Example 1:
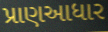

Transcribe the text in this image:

પ્રાણઆધાર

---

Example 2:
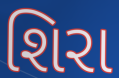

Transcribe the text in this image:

શિરા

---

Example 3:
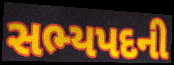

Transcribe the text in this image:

સભ્યપદની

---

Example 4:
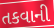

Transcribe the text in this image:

તકવાની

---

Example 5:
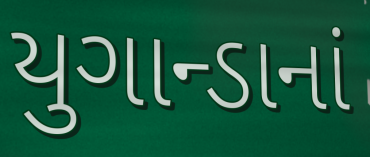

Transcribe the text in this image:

યુગાન્ડાનાં